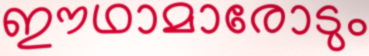
ഈഥാമാരോടും